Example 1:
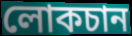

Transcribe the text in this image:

লোকচান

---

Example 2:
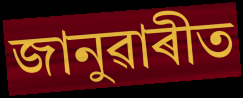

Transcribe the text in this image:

জানুৱাৰীত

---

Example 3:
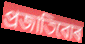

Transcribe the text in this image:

প্ৰজাতিবোৰ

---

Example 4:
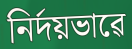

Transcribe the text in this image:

নিৰ্দয়ভাৱে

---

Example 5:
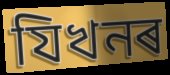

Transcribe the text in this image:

যিখনৰ